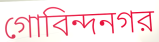
গোবিন্দনগর